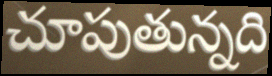
చూపుతున్నది